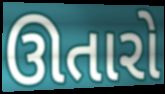
ઊતારો